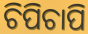
ଚିପିଚାପି